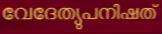
വേദേത്യുപനിഷത്